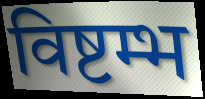
विष्टम्भ